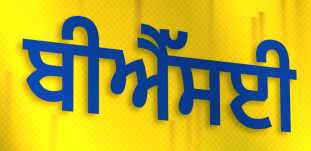
ਬੀਐੱਸਈ